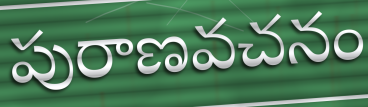
పురాణవచనం